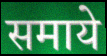
समाये